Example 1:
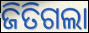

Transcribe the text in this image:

ଜିତିଗଲା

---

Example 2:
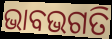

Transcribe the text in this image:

ଭାବଭଗତି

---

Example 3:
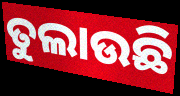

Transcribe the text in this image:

ତୁଲାଉଛି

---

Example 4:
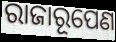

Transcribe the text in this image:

ରାଜାରୂପେଣ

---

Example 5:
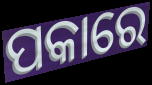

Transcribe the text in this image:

ପକାରେ